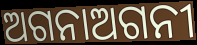
ଅଗନାଅଗନୀ